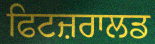
ਫਿਟਜ਼ਰਾਲਡ